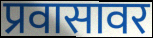
प्रवासावर